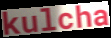
kulcha